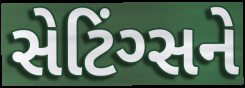
સેટિંગ્સને